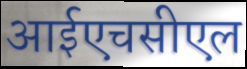
आईएचसीएल